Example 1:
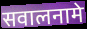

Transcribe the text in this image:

सवालनामे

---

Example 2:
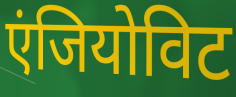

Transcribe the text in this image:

एंजियोविट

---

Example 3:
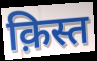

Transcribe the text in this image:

क़िस्त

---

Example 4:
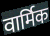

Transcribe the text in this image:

वार्मिक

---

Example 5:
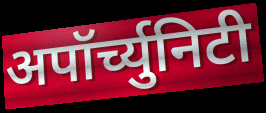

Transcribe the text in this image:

अपॉर्च्युनिटी